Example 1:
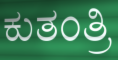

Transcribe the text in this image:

ಕುತಂತ್ರಿ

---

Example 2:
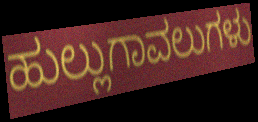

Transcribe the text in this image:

ಹುಲ್ಲುಗಾವಲುಗಳು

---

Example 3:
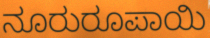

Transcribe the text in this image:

ನೂರುರೂಪಾಯಿ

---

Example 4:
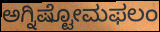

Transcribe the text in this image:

ಅಗ್ನಿಷ್ಟೋಮಫಲಂ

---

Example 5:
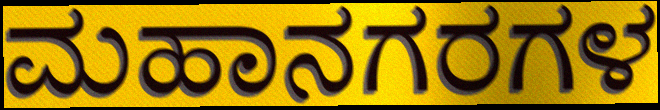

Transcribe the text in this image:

ಮಹಾನಗರಗಳ